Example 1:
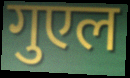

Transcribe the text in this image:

गुएल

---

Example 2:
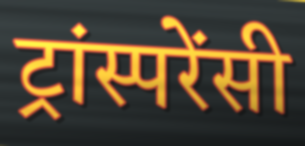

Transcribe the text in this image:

ट्रांस्परेंसी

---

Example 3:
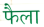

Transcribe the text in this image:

फैला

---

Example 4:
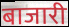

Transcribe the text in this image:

बाजारी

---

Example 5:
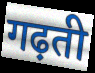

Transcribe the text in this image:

गढ़ती